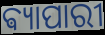
ଵ୍ୟାପାରୀ